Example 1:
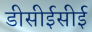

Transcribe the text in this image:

डीसीईसीई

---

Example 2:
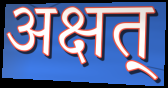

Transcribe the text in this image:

अक्षत्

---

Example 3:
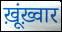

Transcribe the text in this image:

ख़ूंख़्वार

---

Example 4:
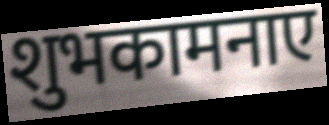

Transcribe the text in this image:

शुभकामनाए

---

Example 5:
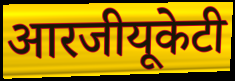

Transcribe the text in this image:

आरजीयूकेटी